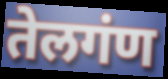
तेलगंण